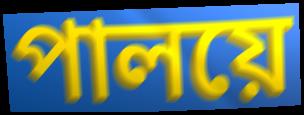
পালয়ে